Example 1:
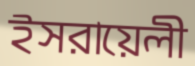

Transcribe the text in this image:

ইসরায়েলী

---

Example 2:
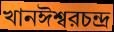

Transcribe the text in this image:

খানঈশ্বরচন্দ্র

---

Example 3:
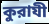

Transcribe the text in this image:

কুরাযী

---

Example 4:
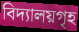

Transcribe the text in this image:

বিদ্যালয়গৃহ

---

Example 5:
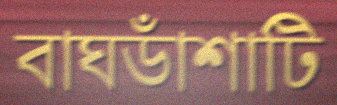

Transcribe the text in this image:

বাঘডাঁশাটি